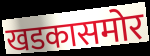
खडकासमोर